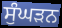
ਸੁੰਘੜਨ